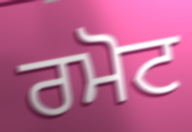
ਰਮੋਟ